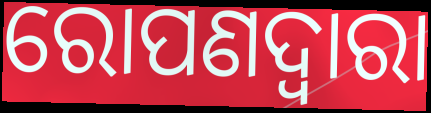
ରୋପଣଦ୍ୱାରା